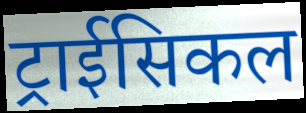
ट्राईसिकल